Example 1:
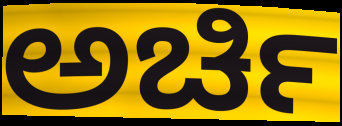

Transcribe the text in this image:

ಅರ್ಚಿ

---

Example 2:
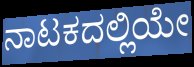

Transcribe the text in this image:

ನಾಟಕದಲ್ಲಿಯೇ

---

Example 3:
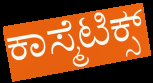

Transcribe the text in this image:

ಕಾಸ್ಮೆಟಿಕ್ಸ್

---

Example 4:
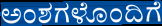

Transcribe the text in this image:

ಅಂಶಗಳೊಂದಿಗೆ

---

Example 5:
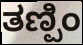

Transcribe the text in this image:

ತಣ್ಪಿಂ